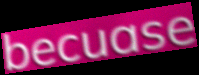
becuase